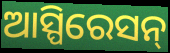
ଆସ୍ପିରେସନ୍